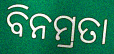
ବିନମ୍ରତା